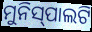
ମୁନିସ୍‍ପାଲଟି